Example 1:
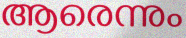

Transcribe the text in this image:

ആരെന്നും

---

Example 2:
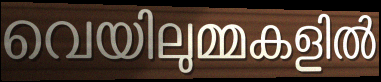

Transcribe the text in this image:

വെയിലുമ്മകളിൽ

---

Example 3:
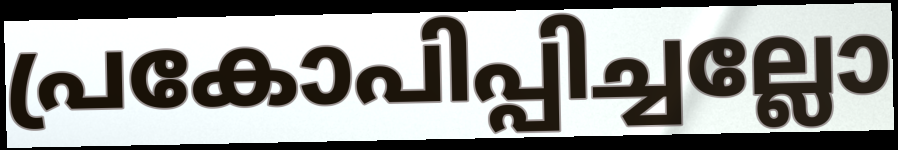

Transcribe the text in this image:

പ്രകോപിപ്പിച്ചല്ലോ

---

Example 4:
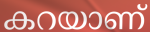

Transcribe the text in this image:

കറയാണ്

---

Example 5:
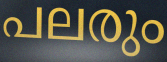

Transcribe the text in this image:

പലരും